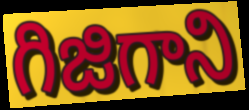
గిజిగాని